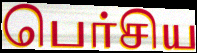
பெர்சிய